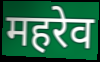
महरेव